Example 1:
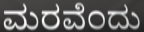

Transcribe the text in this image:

ಮರವೆಂದು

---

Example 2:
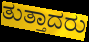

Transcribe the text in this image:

ತುತ್ತಾದರು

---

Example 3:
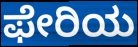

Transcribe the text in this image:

ಫೇರಿಯ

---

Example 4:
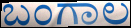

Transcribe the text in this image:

ಬಂಗಾಲ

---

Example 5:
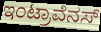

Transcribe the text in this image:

ಇಂಟ್ರಾವೆನಸ್